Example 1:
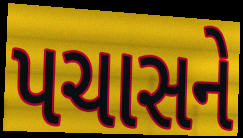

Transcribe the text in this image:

પચાસને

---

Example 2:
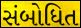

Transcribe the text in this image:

સંબોધિત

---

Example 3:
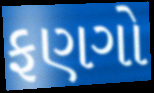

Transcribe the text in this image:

ફણગો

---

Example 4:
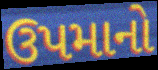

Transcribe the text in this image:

ઉપમાનો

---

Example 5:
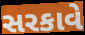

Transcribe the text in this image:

સરકાવે